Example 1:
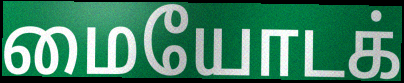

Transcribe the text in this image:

மையோடக்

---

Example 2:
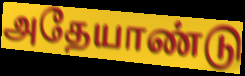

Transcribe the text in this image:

அதேயாண்டு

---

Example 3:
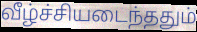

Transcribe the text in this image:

வீழ்ச்சியடைந்ததும்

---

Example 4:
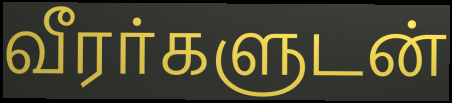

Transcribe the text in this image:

வீரர்களுடன்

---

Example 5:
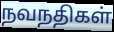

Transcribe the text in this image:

நவநதிகள்